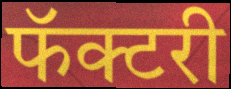
फॅक्टरी